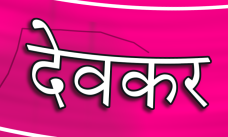
देवकर